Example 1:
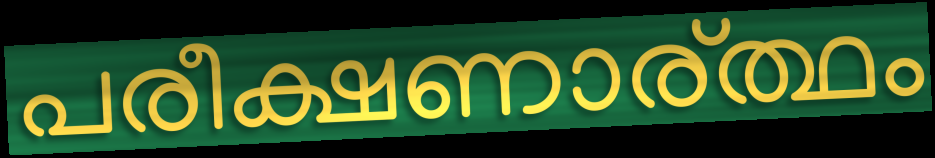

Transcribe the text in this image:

പരീക്ഷണാര്ത്ഥം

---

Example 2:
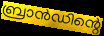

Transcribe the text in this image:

ബ്രാൻഡിന്റെ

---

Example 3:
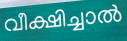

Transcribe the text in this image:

വീക്ഷിച്ചാൽ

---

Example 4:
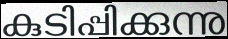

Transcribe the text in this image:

കുടിപ്പിക്കുന്നു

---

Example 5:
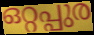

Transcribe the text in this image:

ഒറ്റപ്പുര